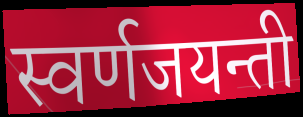
स्वर्णजयन्ती